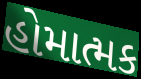
હોમાત્મક